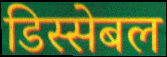
डिस्सेबल